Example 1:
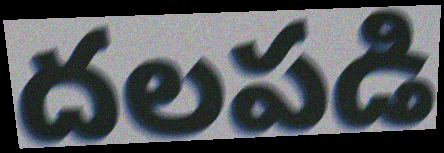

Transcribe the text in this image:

దలపడి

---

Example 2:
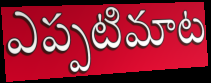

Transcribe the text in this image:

ఎప్పటిమాట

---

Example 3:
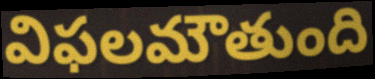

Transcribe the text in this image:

విఫలమౌతుంది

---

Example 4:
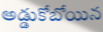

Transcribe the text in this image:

అడ్డుకోబోయిన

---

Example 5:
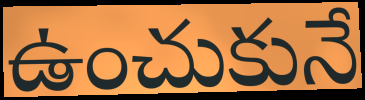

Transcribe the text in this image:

ఉంచుకునే